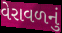
વેરાવળનું